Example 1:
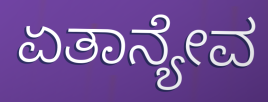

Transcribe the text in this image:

ಏತಾನ್ಯೇವ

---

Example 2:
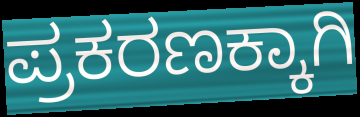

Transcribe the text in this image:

ಪ್ರಕರಣಕ್ಕಾಗಿ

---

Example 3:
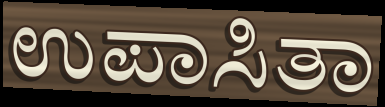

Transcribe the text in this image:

ಉಪಾಸಿತಾ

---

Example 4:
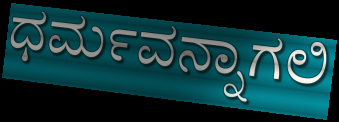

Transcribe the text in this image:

ಧರ್ಮವನ್ನಾಗಲಿ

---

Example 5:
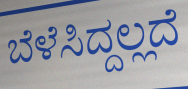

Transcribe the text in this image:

ಬೆಳೆಸಿದ್ದಲ್ಲದೆ